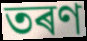
তৰণ